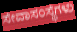
ಸೇವಾಸಂಸ್ಥೆಗಳು